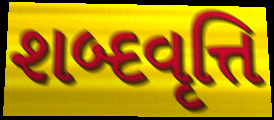
શબ્દવૃત્તિ